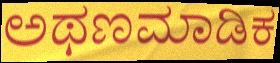
ಅಥಣಮಾಡಿಕ